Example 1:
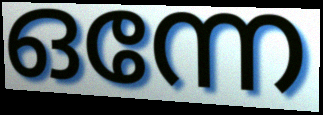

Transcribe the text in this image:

ഒന്നേ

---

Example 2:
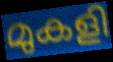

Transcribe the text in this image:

മുകളി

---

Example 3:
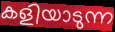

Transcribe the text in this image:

കളിയാടുന്ന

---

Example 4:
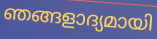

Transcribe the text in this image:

ഞങ്ങളാദ്യമായി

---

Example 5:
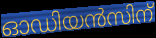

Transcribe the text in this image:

ഓഡിയൻസിന്